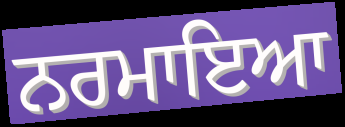
ਨਰਮਾਇਆ